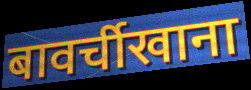
बावर्चीखाना